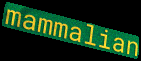
mammalian